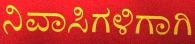
ನಿವಾಸಿಗಳಿಗಾಗಿ